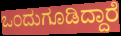
ಒಂದುಗೂಡಿದ್ದಾರೆ